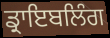
ਡ੍ਰਾਇਬਲਿੰਗ